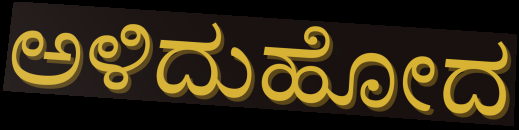
ಅಳಿದುಹೋದ